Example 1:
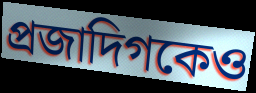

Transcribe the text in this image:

প্রজাদিগকেও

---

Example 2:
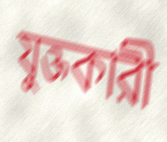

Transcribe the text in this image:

যুক্তকারী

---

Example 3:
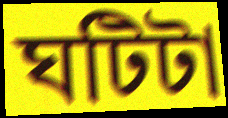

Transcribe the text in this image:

ঘটিটা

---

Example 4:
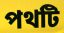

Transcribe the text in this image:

পথটি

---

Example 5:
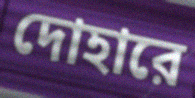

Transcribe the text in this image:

দোহারে